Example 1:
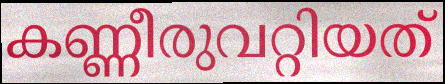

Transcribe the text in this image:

കണ്ണീരുവറ്റിയത്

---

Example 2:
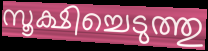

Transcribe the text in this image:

സൂക്ഷിച്ചെടുത്തു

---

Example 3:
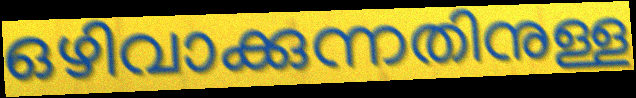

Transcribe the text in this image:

ഒഴിവാക്കുന്നതിനുള്ള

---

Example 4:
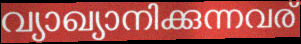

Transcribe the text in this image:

വ്യാഖ്യാനിക്കുന്നവര്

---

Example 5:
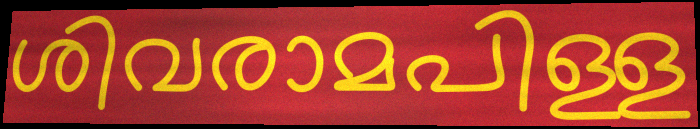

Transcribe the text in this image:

ശിവരാമപിള്ള